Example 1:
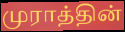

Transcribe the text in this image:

முராத்தின்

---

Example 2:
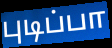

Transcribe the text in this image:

புடிப்பா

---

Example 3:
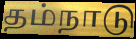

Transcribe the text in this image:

தம்நாடு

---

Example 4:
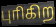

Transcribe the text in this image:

புரிகிற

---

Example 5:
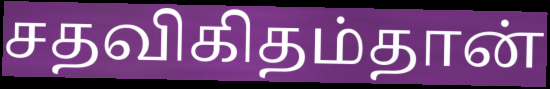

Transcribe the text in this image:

சதவிகிதம்தான்